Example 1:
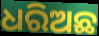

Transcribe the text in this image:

ଧରିଅଛ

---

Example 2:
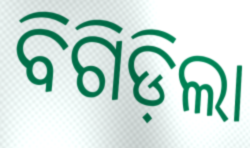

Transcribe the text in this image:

ବିଗିଡ଼ିଲା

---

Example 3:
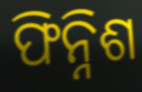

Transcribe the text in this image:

ଫିନ୍ନିଶ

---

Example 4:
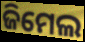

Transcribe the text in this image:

ଜିମେଲ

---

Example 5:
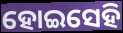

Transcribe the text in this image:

ହୋଇସେହି